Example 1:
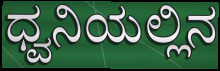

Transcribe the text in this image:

ಧ್ವನಿಯಲ್ಲಿನ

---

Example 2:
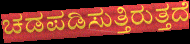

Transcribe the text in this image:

ಚಡಪಡಿಸುತ್ತಿರುತ್ತದೆ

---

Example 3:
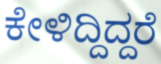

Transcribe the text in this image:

ಕೇಳಿದ್ದಿದ್ದರೆ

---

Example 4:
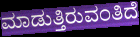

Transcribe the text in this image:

ಮಾಡುತ್ತಿರುವಂತಿದೆ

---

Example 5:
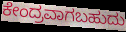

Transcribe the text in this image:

ಕೇಂದ್ರವಾಗಬಹುದು